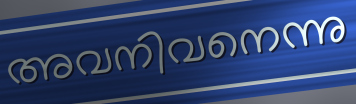
അവനിവനെന്നു